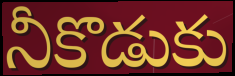
నీకొడుకు